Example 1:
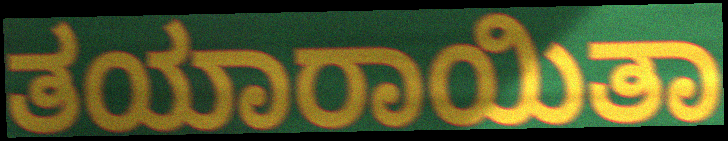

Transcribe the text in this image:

ತಯಾರಾಯಿತಾ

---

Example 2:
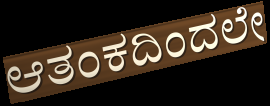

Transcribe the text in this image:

ಆತಂಕದಿಂದಲೇ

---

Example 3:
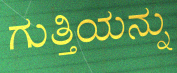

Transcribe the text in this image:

ಗುತ್ತಿಯನ್ನು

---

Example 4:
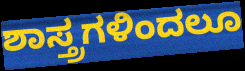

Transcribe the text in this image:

ಶಾಸ್ತ್ರಗಳಿಂದಲೂ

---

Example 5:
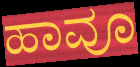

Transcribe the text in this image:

ಹಾವೂ